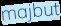
majbut